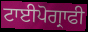
ਟਾਈਪੋਗ੍ਰਾਫੀ